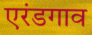
एरंडगाव